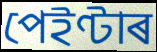
পেইণ্টাৰ